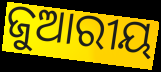
ଜୁଆରୀୟ